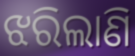
ଝରିଲାଣି